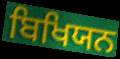
ਬਿਖਿਯਨ